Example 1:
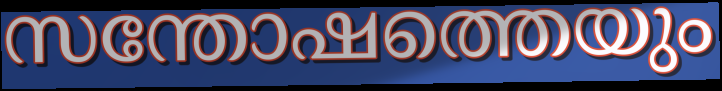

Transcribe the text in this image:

സന്തോഷത്തെയും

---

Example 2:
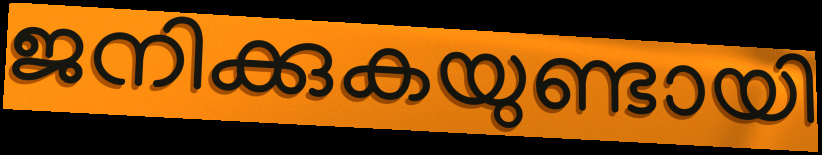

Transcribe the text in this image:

ജനിക്കുകയുണ്ടായി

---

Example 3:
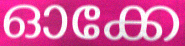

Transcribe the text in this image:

ഓക്കേ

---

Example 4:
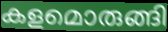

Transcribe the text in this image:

കളമൊരുങ്ങി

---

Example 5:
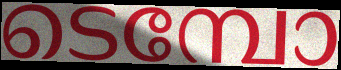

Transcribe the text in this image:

ടെമ്പോ